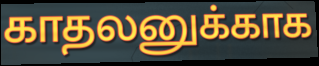
காதலனுக்காக